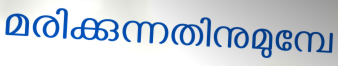
മരിക്കുന്നതിനുമുമ്പേ